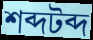
শব্দটব্দ